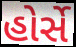
હોર્સે